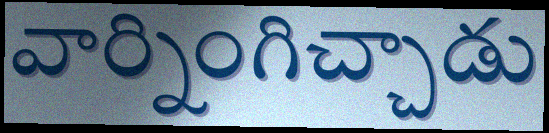
వార్నింగిచ్చాడు